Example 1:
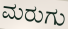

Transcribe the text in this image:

ಮರುಗು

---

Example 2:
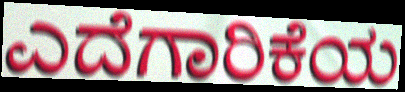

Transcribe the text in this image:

ಎದೆಗಾರಿಕೆಯ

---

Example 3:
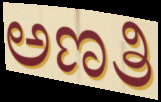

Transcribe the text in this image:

ಅಣತಿ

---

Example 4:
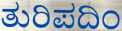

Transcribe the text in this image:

ತುರಿಪದಿಂ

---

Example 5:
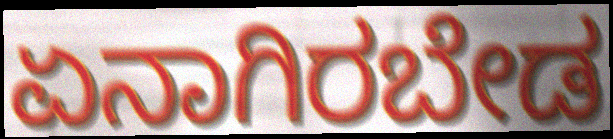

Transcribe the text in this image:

ಏನಾಗಿರಬೇಡ